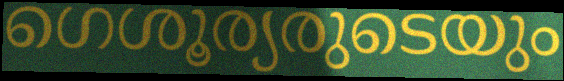
ഗെശൂര്യരുടെയും